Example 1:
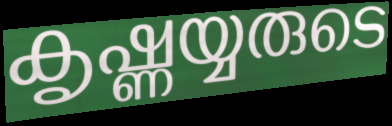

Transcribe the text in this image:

കൃഷ്ണയ്യരുടെ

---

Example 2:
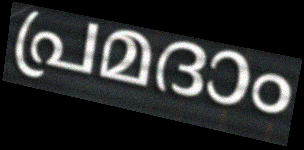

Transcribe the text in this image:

പ്രമദാം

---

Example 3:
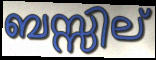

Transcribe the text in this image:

ബസ്സില്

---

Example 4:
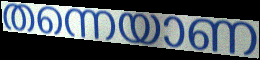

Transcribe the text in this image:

തന്നെയാണ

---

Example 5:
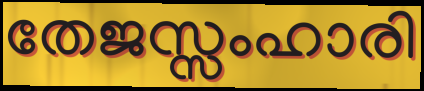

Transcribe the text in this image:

തേജസ്സംഹാരി